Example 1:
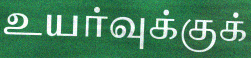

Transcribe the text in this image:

உயர்வுக்குக்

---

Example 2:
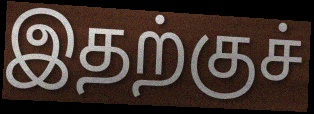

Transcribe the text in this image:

இதற்குச்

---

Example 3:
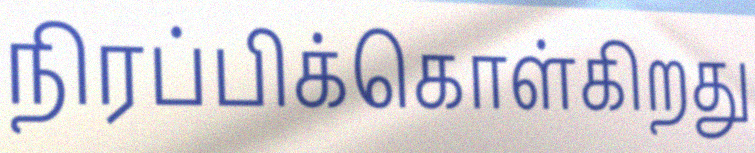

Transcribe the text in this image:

நிரப்பிக்கொள்கிறது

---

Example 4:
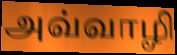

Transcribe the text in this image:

அவ்வாழி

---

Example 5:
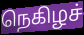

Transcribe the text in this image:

நெகிழச்